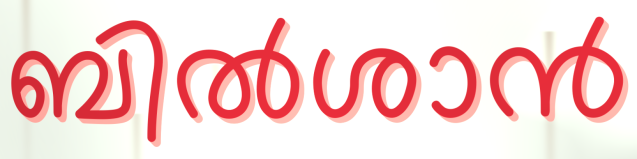
ബിൽശാൻ